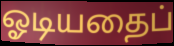
ஓடியதைப்